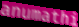
anumathi